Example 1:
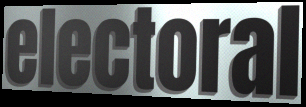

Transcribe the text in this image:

electoral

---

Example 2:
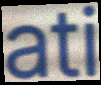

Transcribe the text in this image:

ati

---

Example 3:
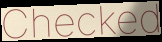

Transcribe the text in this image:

Checked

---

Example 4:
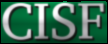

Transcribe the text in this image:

CISF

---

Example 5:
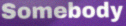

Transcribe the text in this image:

Somebody